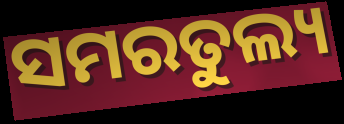
ସମରତୁଲ୍ୟ